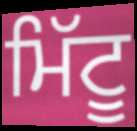
ਮਿੱਟੂ